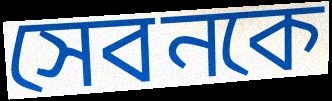
সেবনকে